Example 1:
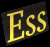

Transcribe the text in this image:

Ess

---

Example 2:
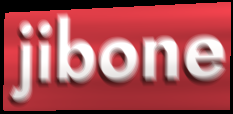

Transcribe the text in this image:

jibone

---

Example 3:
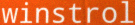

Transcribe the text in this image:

winstrol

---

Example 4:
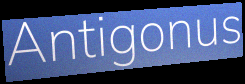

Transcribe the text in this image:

Antigonus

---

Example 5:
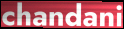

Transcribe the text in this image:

chandani